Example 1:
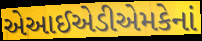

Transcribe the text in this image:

એઆઈએડીએમકેનાં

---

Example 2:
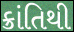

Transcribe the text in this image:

ક્રાંતિથી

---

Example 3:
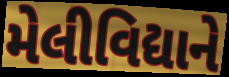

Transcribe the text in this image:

મેલીવિદ્યાને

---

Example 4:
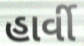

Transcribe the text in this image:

હાર્વી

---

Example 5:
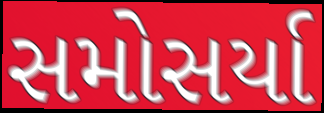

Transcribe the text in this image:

સમોસર્યા